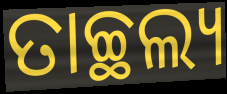
ତାଚ୍ଛଲ୍ଯ